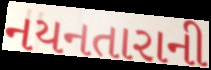
નયનતારાની